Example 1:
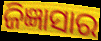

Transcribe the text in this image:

ଜିଜ୍ଞାସାର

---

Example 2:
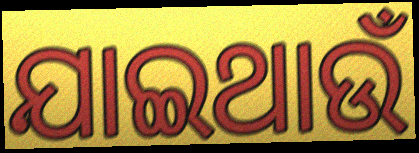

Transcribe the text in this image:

ଯାଇଥାଉଁ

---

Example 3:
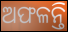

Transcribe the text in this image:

ଅଫଳନ୍ତି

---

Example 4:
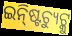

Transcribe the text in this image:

ଇନ୍ଷ୍ଟିଚ୍ୟୁଟ୍କୁ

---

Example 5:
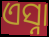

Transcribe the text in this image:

ଏସ୍ନା